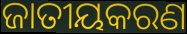
ଜାତୀୟକରଣ